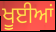
ਖੂਈਆਂ